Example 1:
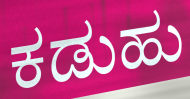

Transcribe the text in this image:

ಕಡುಹು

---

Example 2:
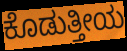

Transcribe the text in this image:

ಕೊಡುತ್ತೀಯ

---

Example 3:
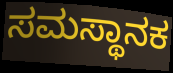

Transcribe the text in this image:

ಸಮಸ್ಥಾನಕ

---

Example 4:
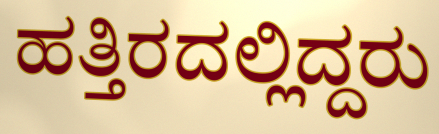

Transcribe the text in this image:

ಹತ್ತಿರದಲ್ಲಿದ್ದರು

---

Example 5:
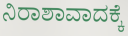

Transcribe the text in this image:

ನಿರಾಶಾವಾದಕ್ಕೆ